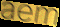
aem